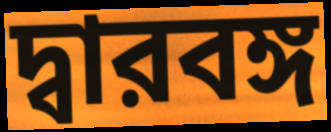
দ্বারবঙ্গ